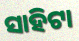
ସାହିଟା